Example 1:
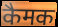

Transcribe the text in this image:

कैमक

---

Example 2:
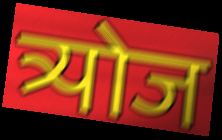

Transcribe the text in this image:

त्र्योज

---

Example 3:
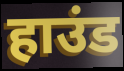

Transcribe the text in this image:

हाउंड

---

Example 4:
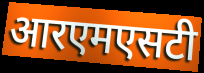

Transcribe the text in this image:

आरएमएसटी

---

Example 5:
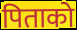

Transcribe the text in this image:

पिताको